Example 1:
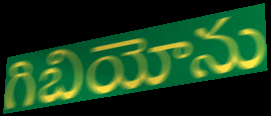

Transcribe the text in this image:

గిబియోను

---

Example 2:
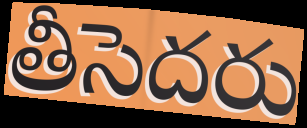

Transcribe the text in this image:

తీసెదరు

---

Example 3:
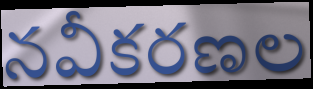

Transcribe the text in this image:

నవీకరణల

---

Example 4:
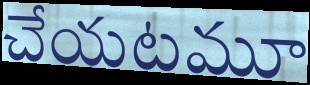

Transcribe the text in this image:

చేయటమూ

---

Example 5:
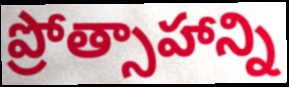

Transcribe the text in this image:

ప్రోత్సాహాన్ని